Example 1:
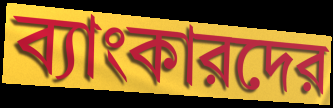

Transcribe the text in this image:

ব্যাংকারদের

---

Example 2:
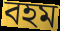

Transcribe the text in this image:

বহম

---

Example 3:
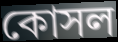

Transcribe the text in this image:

কোসল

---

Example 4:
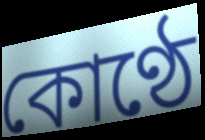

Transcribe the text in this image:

কোণ্ঠে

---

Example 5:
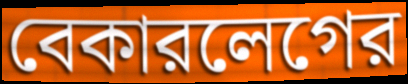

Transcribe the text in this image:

বেকারলেগের